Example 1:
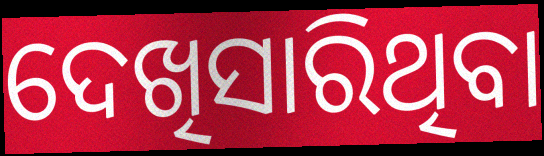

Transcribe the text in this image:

ଦେଖିସାରିଥିବା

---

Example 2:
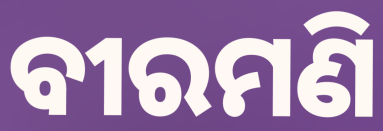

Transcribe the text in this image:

ବୀରମଣି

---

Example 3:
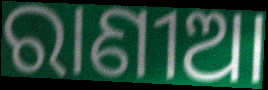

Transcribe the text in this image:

ରାଣୀଆ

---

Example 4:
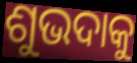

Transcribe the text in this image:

ଶୁଭଦାକୁ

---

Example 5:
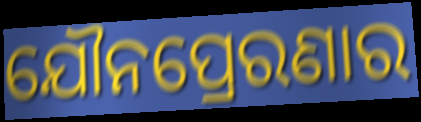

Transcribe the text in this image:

ଯୌନପ୍ରେରଣାର